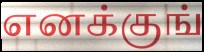
எனக்குங்